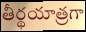
తీర్థయాత్రగా